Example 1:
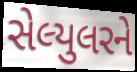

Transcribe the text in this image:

સેલ્યુલરને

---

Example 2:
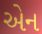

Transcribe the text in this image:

એન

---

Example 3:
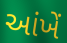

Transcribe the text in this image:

આંખેં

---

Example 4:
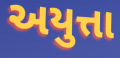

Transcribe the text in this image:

અયુત્તા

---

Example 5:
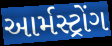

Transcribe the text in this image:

આર્મસ્ટ્રોંગ